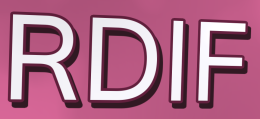
RDIF